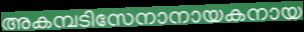
അകമ്പടിസേനാനായകനായ